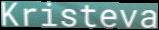
Kristeva